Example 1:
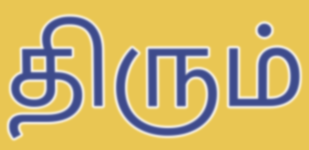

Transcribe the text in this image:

திரும்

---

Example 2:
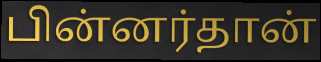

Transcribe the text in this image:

பின்னர்தான்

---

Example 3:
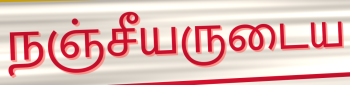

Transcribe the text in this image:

நஞ்சீயருடைய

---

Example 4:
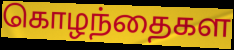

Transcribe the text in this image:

கொழந்தைகள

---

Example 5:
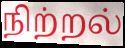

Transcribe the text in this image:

நிற்றல்